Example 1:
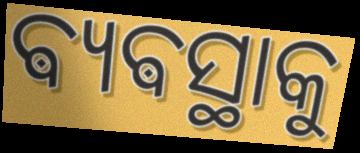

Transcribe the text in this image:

ଵ୍ୟଵସ୍ଥାକୁ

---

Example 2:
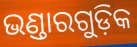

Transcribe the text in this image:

ଭଣ୍ଡାରଗୁଡ଼ିକ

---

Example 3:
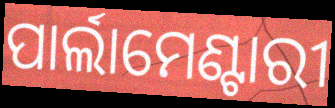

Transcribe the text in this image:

ପାର୍ଲାମେଣ୍ଟାରୀ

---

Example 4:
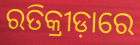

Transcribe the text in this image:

ରତିକ୍ରୀଡ଼ାରେ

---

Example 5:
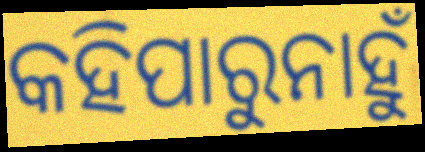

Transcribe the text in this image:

କହିପାରୁନାହୁଁ